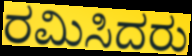
ರಮಿಸಿದರು